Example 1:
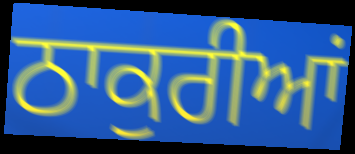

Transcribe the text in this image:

ਠਾਕੁਰੀਆਂ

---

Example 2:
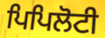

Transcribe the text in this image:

ਪਿਪਿਲੋਟੀ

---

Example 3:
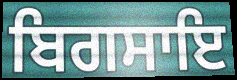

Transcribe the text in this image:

ਬਿਗਸਾਇ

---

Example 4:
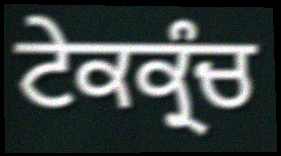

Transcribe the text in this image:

ਟੇਕਕ੍ਰੰਚ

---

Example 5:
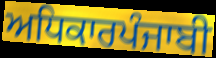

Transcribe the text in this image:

ਅਧਿਕਾਰਪੰਜਾਬੀ